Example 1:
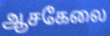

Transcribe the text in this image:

ஆசகேலை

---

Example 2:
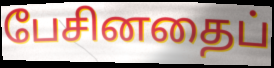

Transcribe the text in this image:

பேசினதைப்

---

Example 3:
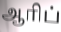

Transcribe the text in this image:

ஆரிப்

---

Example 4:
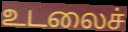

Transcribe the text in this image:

உடலைச்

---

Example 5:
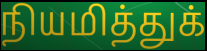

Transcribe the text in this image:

நியமித்துக்